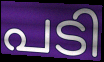
പടി